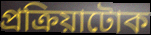
প্ৰক্ৰিয়াটোক